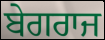
ਬੇਗਰਾਜ